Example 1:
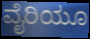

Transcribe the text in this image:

ವೈರಿಯೂ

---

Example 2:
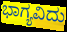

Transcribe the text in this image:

ಭಾಗ್ಯವಿದು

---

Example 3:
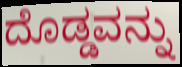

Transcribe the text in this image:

ದೊಡ್ಡವನ್ನು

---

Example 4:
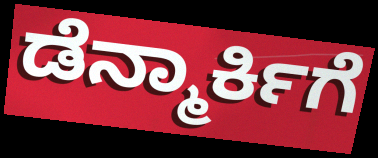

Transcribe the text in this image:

ಡೆನ್ಮಾರ್ಕಿಗೆ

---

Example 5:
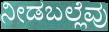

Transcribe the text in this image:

ನೀಡಬಲ್ಲೆವು